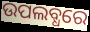
ଉପଲବ୍ଧରେ